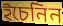
ইচেনিন